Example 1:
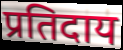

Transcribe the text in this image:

प्रतिदाय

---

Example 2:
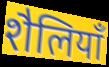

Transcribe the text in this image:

शैलियाँ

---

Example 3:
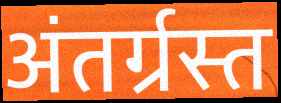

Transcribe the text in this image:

अंतर्ग्रस्त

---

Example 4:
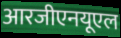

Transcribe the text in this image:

आरजीएनयूएल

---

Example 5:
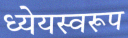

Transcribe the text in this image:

ध्येयस्वरूप